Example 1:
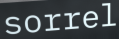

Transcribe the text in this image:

sorrel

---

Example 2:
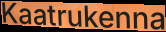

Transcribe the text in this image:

Kaatrukenna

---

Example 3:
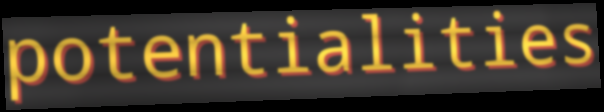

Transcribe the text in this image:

potentialities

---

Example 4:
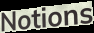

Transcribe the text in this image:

Notions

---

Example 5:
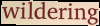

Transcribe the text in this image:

wildering